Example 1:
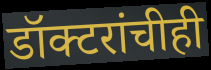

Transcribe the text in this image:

डॉक्टरांचीही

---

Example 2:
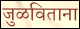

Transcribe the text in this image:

जुळविताना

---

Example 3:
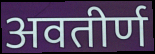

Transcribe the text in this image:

अवतीर्ण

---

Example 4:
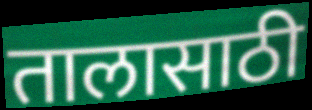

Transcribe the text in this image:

तालासाठी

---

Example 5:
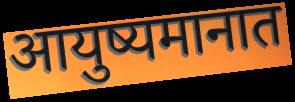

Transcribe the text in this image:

आयुष्यमानात